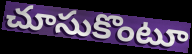
చూసుకొంటూ